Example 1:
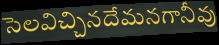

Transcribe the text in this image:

సెలవిచ్చినదేమనగానీవు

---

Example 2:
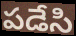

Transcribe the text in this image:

పడేసి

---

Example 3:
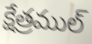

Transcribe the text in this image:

క్షేత్రముల్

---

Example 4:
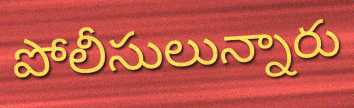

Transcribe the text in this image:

పోలీసులున్నారు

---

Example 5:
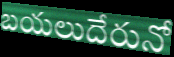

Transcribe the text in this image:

బయలుదేరునో